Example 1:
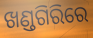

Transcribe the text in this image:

ଖଣ୍ଡଗିରିରେ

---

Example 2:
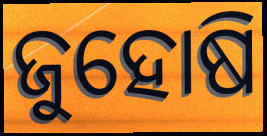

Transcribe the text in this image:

ଜୁହୋଷି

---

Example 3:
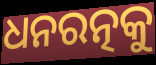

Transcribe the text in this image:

ଧନରତ୍ନକୁ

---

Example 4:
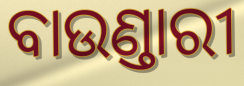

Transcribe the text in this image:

ବାଉଣ୍ଡାରୀ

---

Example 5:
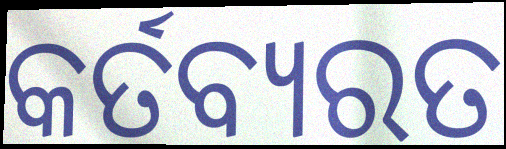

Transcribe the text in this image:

କର୍ତବ୍ୟରତ